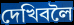
দেখিবলৈ